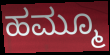
ಹಮ್ಮೂ